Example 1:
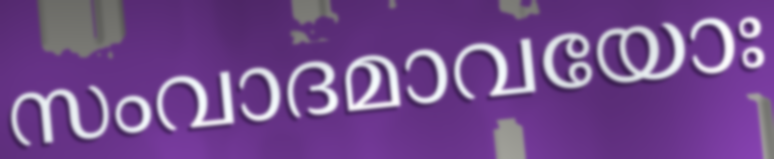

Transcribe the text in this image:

സംവാദമാവയോഃ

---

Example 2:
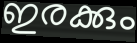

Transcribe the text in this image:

ഇരക്കും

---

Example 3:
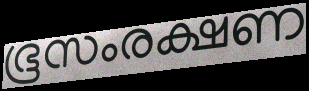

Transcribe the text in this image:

ഭൂസംരക്ഷണ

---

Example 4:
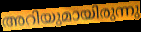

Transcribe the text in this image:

അറിയുമായിരുന്നു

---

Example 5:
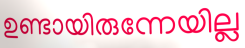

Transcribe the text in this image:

ഉണ്ടായിരുന്നേയില്ല